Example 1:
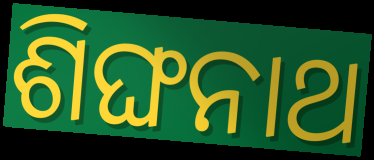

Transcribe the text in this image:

ଶିଙ୍ଘନାଥ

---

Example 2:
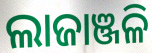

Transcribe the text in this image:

ଲାଜାଞ୍ଜଳି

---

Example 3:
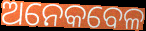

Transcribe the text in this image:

ଅନେକବେଳ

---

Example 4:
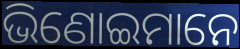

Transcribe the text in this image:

ଭିଣୋଇମାନେ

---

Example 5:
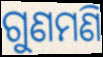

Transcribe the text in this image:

ଗୁଣମଣି